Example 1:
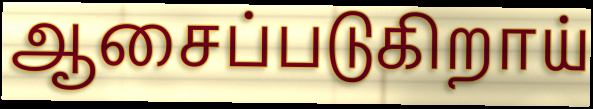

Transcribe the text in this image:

ஆசைப்படுகிறாய்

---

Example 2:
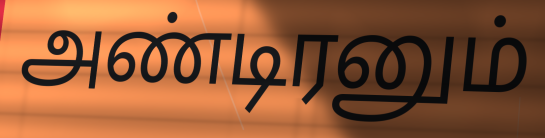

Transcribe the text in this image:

அண்டிரனும்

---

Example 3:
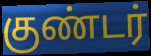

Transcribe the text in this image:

குண்டர்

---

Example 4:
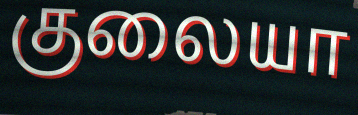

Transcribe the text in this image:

குலையா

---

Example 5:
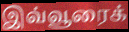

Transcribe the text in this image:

இவ்வூரைக்